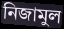
নিজামুল